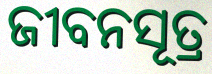
ଜୀବନସୂତ୍ର